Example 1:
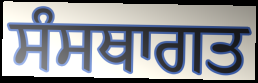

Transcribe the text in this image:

ਸੰਸਥਾਗਤ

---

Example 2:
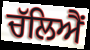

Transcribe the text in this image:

ਚੱਲਿਐਂ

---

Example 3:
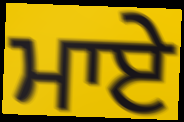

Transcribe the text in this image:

ਮਾਏ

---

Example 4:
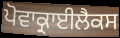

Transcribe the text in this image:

ਪੋਵਾਕ੍ਰਾਈਲੈਕਸ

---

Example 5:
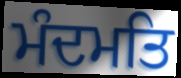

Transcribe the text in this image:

ਮੰਦਮਤਿ